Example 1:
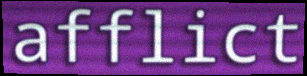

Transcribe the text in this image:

afflict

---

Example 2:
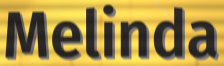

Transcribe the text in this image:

Melinda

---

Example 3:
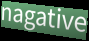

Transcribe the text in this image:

nagative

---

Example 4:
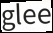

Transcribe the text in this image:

glee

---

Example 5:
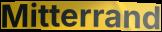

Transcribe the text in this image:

Mitterrand